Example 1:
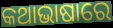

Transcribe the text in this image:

କଥାଭାଷାରେ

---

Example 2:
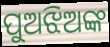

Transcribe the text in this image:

ପୁଅଝିଅଙ୍କ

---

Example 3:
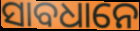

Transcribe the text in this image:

ସାବଧାନେ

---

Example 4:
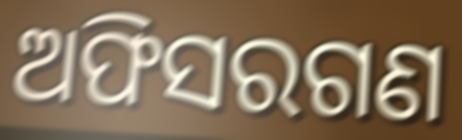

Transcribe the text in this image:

ଅଫିସରଗଣ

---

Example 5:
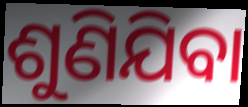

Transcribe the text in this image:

ଶୁଣିଯିବା